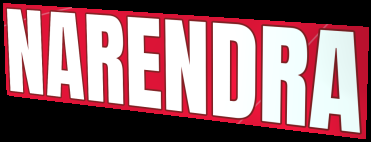
NARENDRA